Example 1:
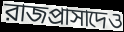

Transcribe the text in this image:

রাজপ্রাসাদেও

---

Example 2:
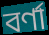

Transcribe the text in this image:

বর্ণা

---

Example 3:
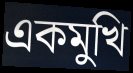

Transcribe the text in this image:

একমুখি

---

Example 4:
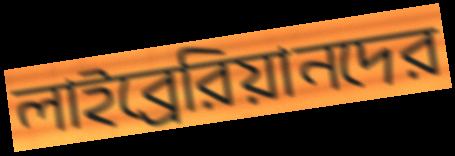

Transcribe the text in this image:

লাইব্রেরিয়ানদের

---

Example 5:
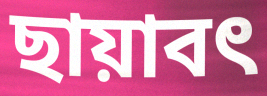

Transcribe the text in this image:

ছায়াবৎ